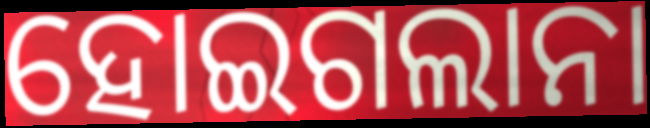
ହୋଇଗଲାନା